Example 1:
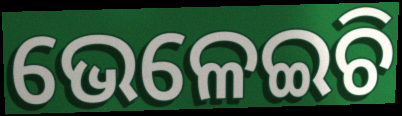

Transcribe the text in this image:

ଭେଳେଇଚି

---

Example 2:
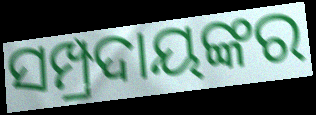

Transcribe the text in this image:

ସମ୍ପ୍ରଦାୟଙ୍କର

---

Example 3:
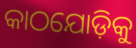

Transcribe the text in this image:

କାଠଯୋଡ଼ିକୁ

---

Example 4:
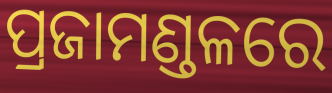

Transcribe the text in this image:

ପ୍ରଜାମଣ୍ଡଳରେ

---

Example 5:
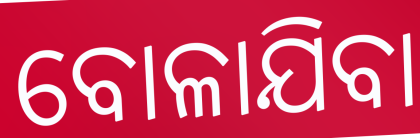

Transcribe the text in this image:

ବୋଳାଯିବା